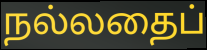
நல்லதைப்